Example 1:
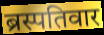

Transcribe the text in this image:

ब्रस्पतिवार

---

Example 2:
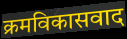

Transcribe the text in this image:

क्रमविकासवाद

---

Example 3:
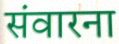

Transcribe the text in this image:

संवारना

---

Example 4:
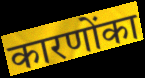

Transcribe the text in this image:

कारणोंका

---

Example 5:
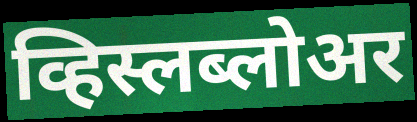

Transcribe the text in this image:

व्हिस्लब्लोअर